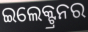
ଇଲେକ୍ଟ୍ରନର